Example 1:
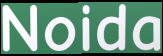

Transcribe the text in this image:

Noida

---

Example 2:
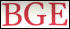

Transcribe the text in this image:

BGE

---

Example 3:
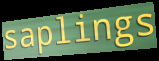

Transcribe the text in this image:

saplings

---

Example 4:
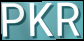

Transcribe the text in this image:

PKR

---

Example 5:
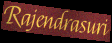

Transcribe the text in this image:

Rajendrasuri